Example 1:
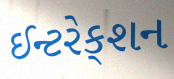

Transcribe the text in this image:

ઈન્ટરેક્‌શન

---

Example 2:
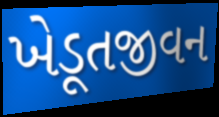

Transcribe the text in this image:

ખેડૂતજીવન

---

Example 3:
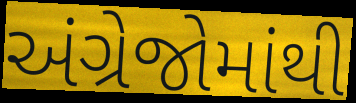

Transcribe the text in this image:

અંગ્રેજોમાંથી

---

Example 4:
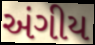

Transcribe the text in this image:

અંગીય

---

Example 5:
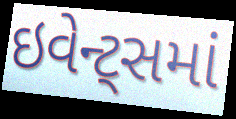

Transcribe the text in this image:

ઇવેન્ટ્સમાં